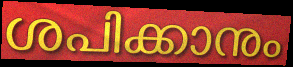
ശപിക്കാനും